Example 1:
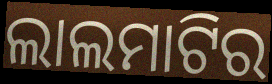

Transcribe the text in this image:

ଲାଲମାଟିର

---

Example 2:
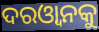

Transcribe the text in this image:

ଦରଓ୍ୱାନକୁ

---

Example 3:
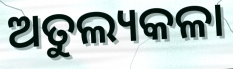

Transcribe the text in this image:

ଅତୁଲ୍ୟକଳା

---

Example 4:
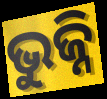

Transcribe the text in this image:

ଭୁଜ୍ନି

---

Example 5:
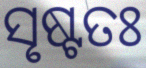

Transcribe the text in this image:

ସୃଷ୍ଟତଃ